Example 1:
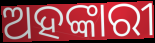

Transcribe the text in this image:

ଅହଙ୍କାରୀ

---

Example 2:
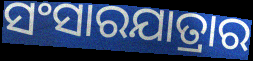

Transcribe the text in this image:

ସଂସାରଯାତ୍ରାର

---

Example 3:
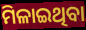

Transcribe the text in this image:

ମିଳାଇଥିବା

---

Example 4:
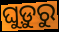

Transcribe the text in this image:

ଘୁଡ଼ୁରୁ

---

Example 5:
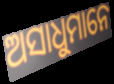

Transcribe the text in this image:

ଅସାଧୁମାନେ